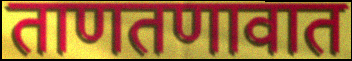
ताणतणावात